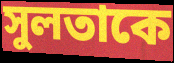
সুলতাকে